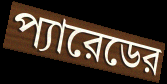
প্যারেডের